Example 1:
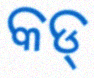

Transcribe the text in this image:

କଡ୍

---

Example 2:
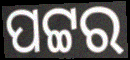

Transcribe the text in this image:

ପଟ୍ଟର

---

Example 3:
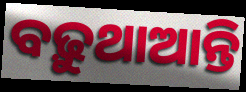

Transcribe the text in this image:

ବଢ଼ୁଥାଆନ୍ତି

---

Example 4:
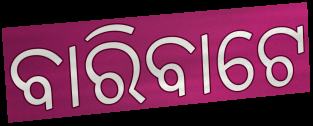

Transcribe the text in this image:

ବାରିବାଟେ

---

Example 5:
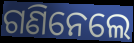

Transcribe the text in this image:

ଗଣିନେଲେ